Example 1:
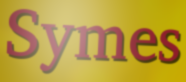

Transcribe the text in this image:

Symes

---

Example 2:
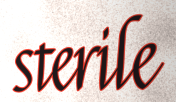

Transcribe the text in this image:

sterile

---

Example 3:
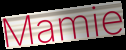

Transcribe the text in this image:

Mamie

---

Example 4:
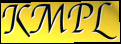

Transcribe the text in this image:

KMPL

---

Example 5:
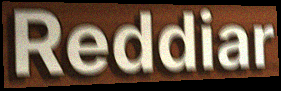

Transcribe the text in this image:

Reddiar